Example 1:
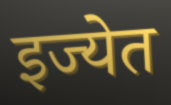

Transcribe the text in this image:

इज्येत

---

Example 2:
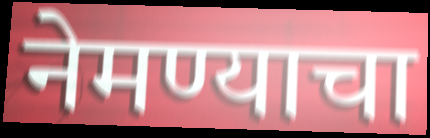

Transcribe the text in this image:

नेमण्याचा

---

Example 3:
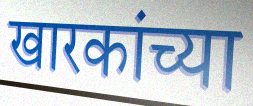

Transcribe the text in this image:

खारकांच्या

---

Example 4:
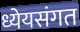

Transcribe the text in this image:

ध्येयसंगत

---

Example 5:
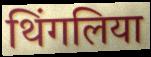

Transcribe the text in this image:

थिंगलिया